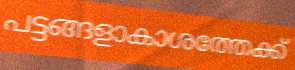
പട്ടങ്ങളാകാശത്തേക്ക്